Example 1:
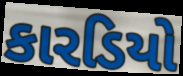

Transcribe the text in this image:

કારડિયો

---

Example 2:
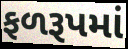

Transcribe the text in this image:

ફળરૂપમાં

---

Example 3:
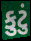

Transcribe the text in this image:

કુટું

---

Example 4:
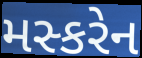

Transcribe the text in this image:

મસ્કરેન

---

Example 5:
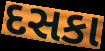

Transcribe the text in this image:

દસકા